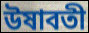
উষাবতী